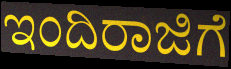
ಇಂದಿರಾಜಿಗೆ